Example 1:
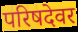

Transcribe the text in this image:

परिषदेवर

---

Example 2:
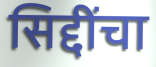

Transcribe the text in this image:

सिद्दींचा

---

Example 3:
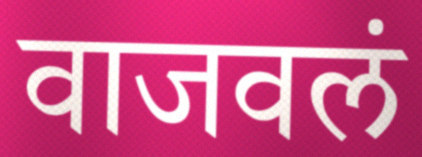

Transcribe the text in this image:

वाजवलं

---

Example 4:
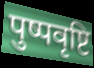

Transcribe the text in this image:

पुष्पवृष्टि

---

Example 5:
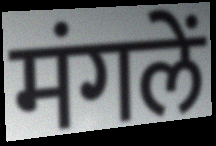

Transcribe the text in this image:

मंगलें